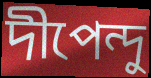
দীপেন্দু